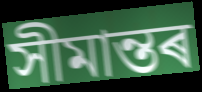
সীমান্তৰ